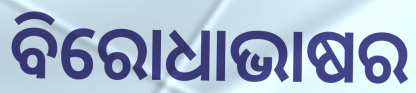
ବିରୋଧାଭାଷର